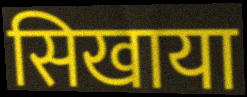
सिखाया